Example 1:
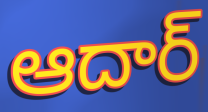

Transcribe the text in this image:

ఆదార్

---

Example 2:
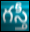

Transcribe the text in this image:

గస్తీ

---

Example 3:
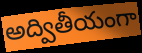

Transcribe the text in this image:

అద్వితీయంగా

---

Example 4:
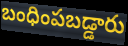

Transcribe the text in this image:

బంధింపబడ్డారు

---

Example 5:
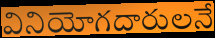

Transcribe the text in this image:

వినియోగదారులనే